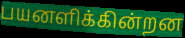
பயனளிக்கின்றன